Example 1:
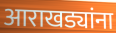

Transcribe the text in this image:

आराखड्यांना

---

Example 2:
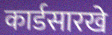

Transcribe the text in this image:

कार्डसारखे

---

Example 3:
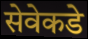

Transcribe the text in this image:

सेवेकडे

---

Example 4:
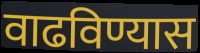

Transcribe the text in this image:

वाढविण्यास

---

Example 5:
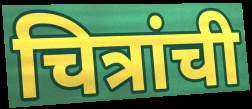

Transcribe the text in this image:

चित्रांची